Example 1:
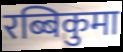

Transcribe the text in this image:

रब्बिकुमा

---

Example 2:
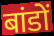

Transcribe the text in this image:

बांडों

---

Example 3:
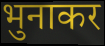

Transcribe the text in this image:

भुनाकर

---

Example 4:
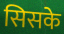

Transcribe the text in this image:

सिसके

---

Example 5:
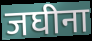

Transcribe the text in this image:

जघीना